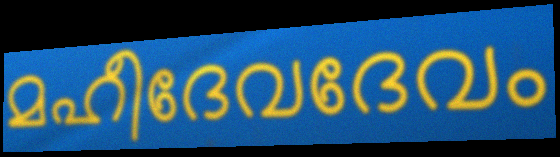
മഹീദേവദേവം